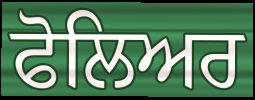
ਫੋਲਿਅਰ